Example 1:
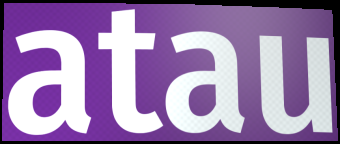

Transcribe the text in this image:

atau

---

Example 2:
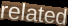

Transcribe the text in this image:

related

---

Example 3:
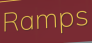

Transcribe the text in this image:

Ramps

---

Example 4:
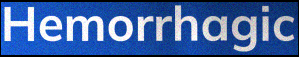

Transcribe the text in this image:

Hemorrhagic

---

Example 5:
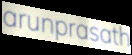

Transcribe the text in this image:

arunprasath